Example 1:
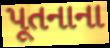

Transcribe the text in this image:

પૂતનાના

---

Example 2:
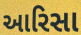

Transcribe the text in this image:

આરિસા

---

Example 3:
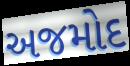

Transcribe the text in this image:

અજમોદ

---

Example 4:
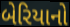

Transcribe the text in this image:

બેરિયાનો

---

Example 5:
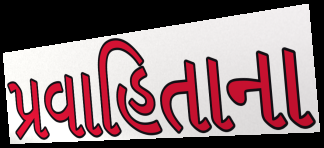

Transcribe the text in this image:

પ્રવાહિતાના